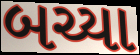
બચ્યા